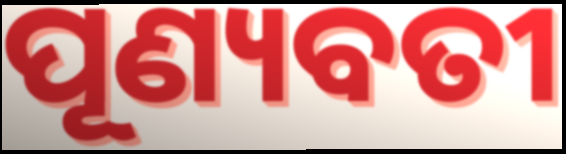
ପୂଣ୍ୟବତୀ